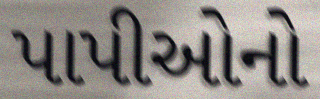
પાપીઓનો